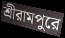
শ্রীরামপুরে